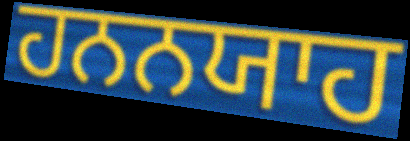
ਹਨਨਯਾਹ